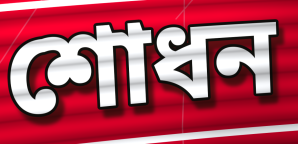
শোধন